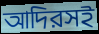
আদিরসই